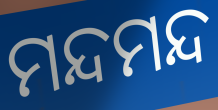
ମନ୍ଦମନ୍ଦ